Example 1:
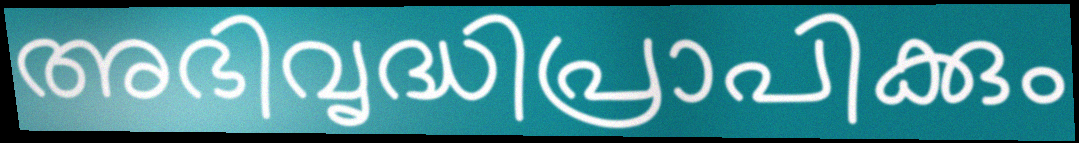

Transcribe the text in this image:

അഭിവൃദ്ധിപ്രാപിക്കും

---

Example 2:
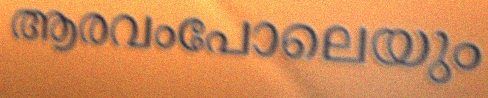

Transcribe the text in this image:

ആരവംപോലെയും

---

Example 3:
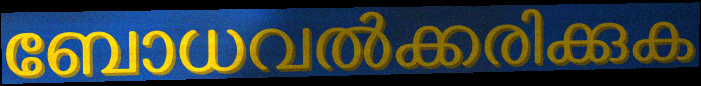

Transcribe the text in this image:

ബോധവൽക്കരിക്കുക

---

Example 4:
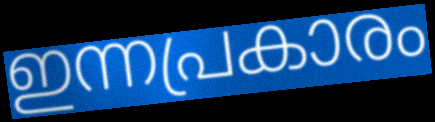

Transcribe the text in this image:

ഇന്നപ്രകാരം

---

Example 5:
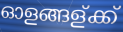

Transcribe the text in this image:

ഓളങ്ങള്ക്ക്